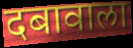
दबावाला